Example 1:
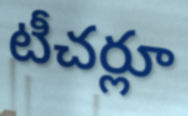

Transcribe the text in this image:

టీచర్లూ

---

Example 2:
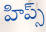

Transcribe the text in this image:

హిప్స్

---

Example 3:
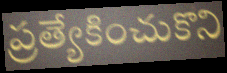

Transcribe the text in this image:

ప్రత్యేకించుకొని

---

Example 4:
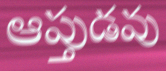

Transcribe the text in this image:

ఆప్తుడవు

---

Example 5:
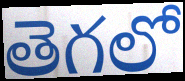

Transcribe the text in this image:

తెగలో